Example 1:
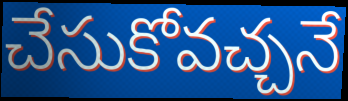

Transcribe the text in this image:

చేసుకోవచ్చనే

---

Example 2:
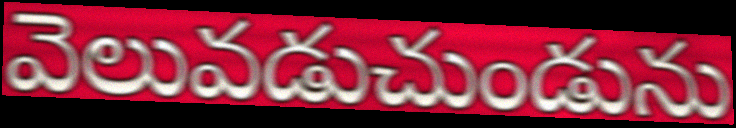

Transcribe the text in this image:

వెలువడుచుండును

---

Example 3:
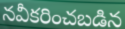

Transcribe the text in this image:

నవీకరించబడిన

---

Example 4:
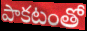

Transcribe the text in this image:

పాకటంతో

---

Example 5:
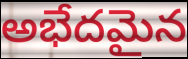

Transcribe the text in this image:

అభేదమైన